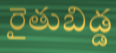
రైతుబిడ్డ